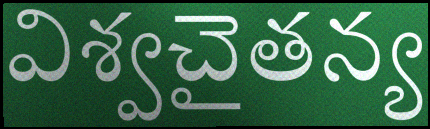
విశ్వచైతన్య